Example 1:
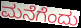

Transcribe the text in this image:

ಮನೆಗೆಂದು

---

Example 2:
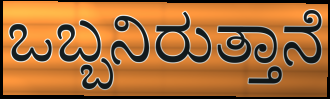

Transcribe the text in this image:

ಒಬ್ಬನಿರುತ್ತಾನೆ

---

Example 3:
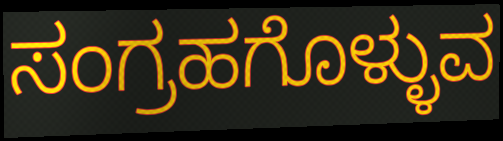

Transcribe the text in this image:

ಸಂಗ್ರಹಗೊಳ್ಳುವ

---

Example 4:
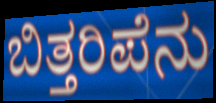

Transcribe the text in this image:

ಬಿತ್ತರಿಪೆನು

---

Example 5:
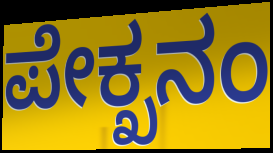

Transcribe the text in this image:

ಪೇಕ್ಖನಂ